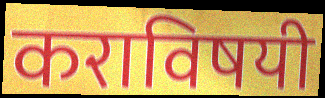
कराविषयी